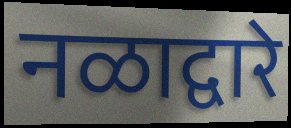
नळाद्वारे